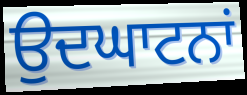
ਉਦਘਾਟਨਾਂ